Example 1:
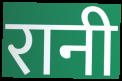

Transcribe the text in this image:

रानी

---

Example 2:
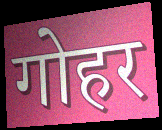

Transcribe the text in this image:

गोहर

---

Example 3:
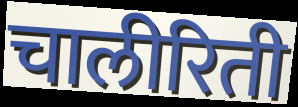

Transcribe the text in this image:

चालीरिती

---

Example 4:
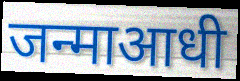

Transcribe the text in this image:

जन्माआधी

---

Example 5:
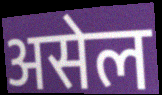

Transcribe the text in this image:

असेल